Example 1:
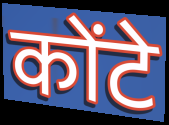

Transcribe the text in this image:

कोंटे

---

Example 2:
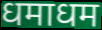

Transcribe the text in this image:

धमाधम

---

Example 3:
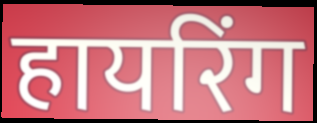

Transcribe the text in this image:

हायरिंग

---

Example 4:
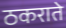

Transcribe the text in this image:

ठकराते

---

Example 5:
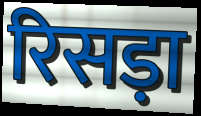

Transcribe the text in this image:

रिसड़ा